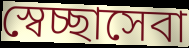
স্বেচ্ছাসেবা